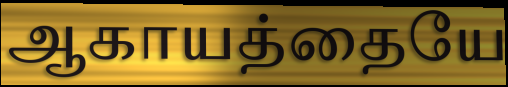
ஆகாயத்தையே